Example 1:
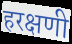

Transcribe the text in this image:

हरक्षणी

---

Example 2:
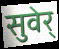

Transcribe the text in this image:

सुवेर्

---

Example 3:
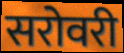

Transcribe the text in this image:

सरोवरी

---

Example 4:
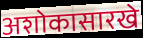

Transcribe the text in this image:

अशोकासारखे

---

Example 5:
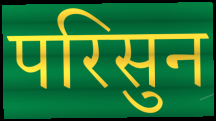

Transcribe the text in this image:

परिसुन